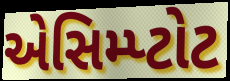
એસિમ્પ્ટોટ